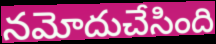
నమోదుచేసింది